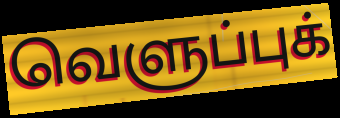
வெளுப்புக்